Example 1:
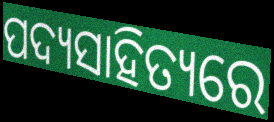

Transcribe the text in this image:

ପଦ୍ୟସାହିତ୍ୟରେ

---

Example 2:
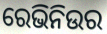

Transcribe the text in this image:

ରେଭିନିଉର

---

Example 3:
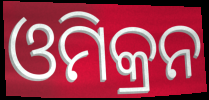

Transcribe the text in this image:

ଓମିକ୍ରନ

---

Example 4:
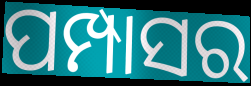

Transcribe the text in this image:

ପମ୍ପାସର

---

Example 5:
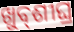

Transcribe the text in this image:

ଖୁବ୍‌ଶୀଘ୍ର